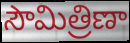
సౌమిత్రిణా